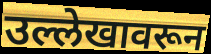
उल्लेखावरून